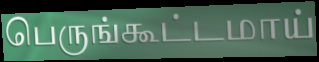
பெருங்கூட்டமாய்